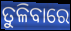
ତୁଳିବାରେ